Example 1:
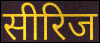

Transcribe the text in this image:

सीरिज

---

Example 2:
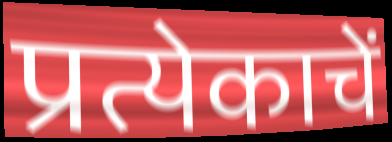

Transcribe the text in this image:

प्रत्येकाचें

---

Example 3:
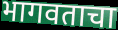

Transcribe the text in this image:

भागवताचा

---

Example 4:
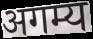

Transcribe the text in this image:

अगम्य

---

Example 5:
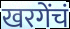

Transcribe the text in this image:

खरगेंचं